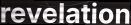
revelation